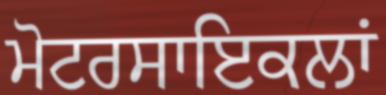
ਮੋਟਰਸਾਇਕਲਾਂ